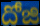
దోజి